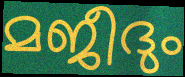
മജീദും